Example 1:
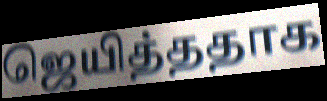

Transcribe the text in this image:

ஜெயித்ததாக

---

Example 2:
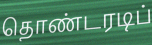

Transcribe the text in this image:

தொண்டரடிப்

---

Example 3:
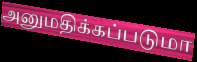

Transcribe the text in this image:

அனுமதிக்கப்படுமா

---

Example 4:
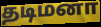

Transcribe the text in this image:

தடிமனா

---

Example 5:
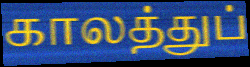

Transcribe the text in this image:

காலத்துப்